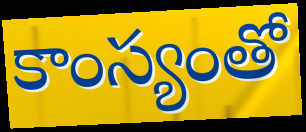
కాంస్యంతో